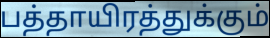
பத்தாயிரத்துக்கும்